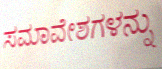
ಸಮಾವೇಶಗಳನ್ನು